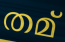
തമ്